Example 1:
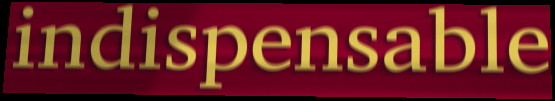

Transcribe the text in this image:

indispensable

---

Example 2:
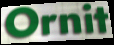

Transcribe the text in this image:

Ornit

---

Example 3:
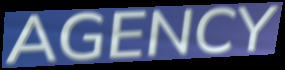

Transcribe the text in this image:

AGENCY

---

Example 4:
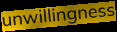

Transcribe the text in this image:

unwillingness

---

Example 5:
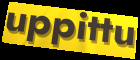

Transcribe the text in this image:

uppittu